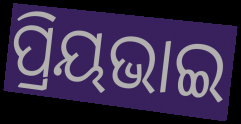
ପ୍ରିୟଭାଇ